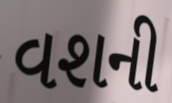
વશની